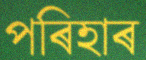
পৰিহাৰ